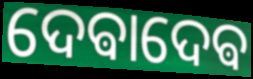
ଦେଵାଦେଵ